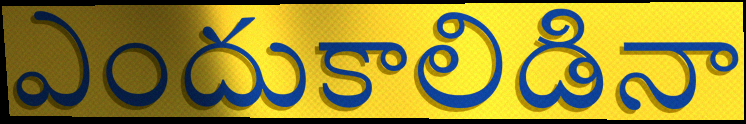
ఎందుకాలిడినా